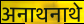
अनाथनाथे